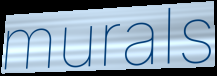
murals